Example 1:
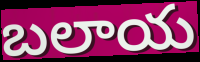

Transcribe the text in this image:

బలాయ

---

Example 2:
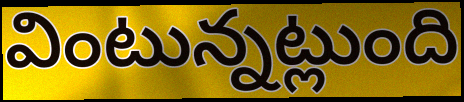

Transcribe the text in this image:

వింటున్నట్లుంది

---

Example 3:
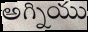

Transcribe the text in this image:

అగ్నియు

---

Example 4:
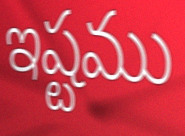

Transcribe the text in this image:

ఇష్టము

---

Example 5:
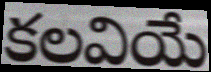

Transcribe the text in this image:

కలవియే